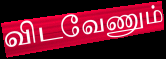
விடவேணும்